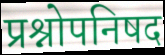
प्रश्नोपनिषद